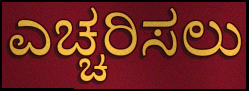
ಎಚ್ಚರಿಸಲು